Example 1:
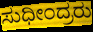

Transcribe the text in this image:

ಸುಧೀಂದ್ರರು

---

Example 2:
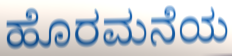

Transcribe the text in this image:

ಹೊರಮನೆಯ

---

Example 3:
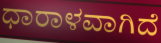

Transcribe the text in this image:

ಧಾರಾಳವಾಗಿದೆ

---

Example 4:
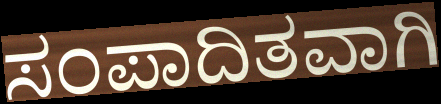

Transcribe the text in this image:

ಸಂಪಾದಿತವಾಗಿ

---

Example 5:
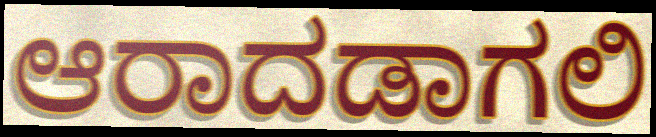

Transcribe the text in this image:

ಆರಾದಡಾಗಲಿ